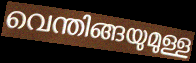
വെന്തിങ്ങയുമുള്ള